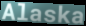
Alaska